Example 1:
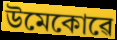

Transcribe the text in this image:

উমেকোৱে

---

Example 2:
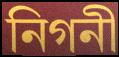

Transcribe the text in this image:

নিগনী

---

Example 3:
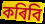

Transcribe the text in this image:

কৰিবি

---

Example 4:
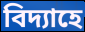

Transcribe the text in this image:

বিদ্যাহে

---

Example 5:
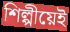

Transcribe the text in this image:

শিল্পীয়েই